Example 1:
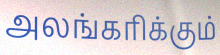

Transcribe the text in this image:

அலங்கரிக்கும்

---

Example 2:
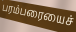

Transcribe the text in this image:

பரம்பரையைச்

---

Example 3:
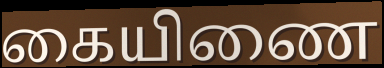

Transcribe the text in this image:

கையிணை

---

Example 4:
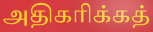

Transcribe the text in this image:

அதிகரிக்கத்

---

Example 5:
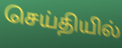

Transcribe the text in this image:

செய்தியில்